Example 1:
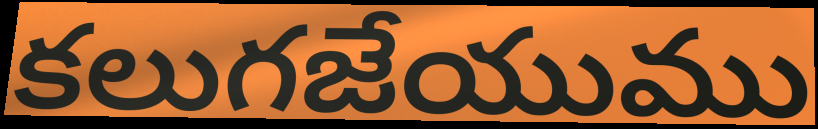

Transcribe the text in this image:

కలుగజేయుము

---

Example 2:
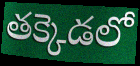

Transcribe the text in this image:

తక్కెడలో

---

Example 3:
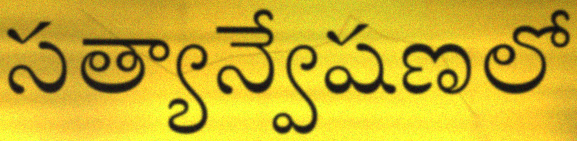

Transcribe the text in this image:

సత్యాన్వేషణలో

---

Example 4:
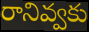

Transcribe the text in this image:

రానివ్వకు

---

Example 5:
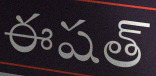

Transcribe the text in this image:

ఈషత్